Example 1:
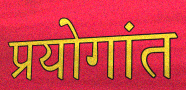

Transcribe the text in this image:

प्रयोगांत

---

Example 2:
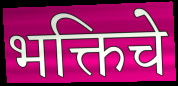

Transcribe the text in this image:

भक्तिचे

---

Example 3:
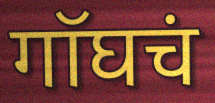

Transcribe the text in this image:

गॉघचं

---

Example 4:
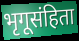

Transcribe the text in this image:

भृगूसंहिता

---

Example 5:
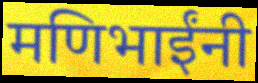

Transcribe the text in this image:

मणिभाईंनी